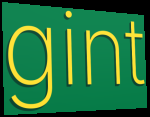
gint